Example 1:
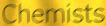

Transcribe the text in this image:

Chemists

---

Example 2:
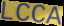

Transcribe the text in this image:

LCCA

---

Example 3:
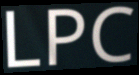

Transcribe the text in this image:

LPC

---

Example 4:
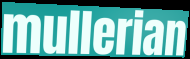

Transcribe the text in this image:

mullerian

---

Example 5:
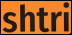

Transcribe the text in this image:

shtri